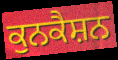
ਕੁਨਕੈਸ਼ਨ